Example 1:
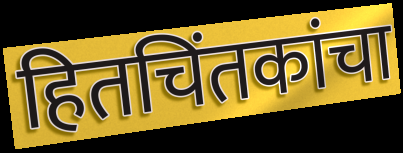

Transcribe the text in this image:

हितचिंतकांचा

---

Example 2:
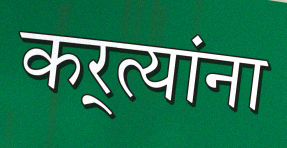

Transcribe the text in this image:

कर्त्यांना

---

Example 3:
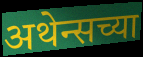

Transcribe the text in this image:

अथेन्सच्या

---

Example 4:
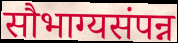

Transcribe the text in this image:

सौभाग्यसंपन्न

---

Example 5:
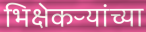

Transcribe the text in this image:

भिक्षेकऱ्यांच्या